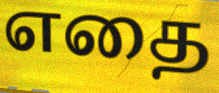
எதை